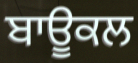
ਬਾਊਕਲ